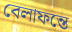
বেলাফন্তে